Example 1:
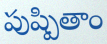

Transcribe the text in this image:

పుష్పితాం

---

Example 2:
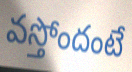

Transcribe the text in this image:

వస్తోందంటే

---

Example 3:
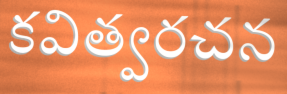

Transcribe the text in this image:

కవిత్వరచన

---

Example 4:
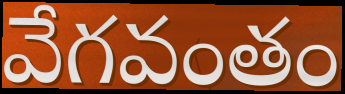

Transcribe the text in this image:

వేగవంతం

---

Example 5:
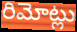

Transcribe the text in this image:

రిమోట్లు